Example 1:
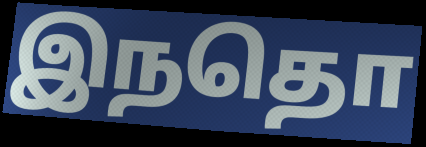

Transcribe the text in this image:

இநதொ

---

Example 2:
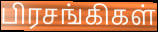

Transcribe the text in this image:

பிரசங்கிகள்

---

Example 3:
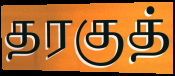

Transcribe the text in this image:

தரகுத்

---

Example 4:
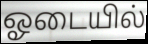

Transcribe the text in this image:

ஓடையில்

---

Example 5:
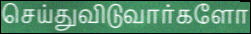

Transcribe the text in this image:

செய்துவிடுவார்களோ